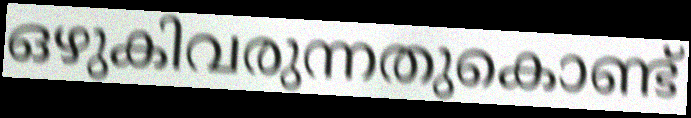
ഒഴുകിവരുന്നതുകൊണ്ട്